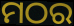
ମଠର